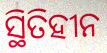
ସ୍ଥିତିହୀନ